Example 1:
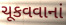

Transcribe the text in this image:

ચૂકવવાનાં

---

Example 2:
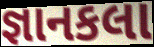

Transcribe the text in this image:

જ્ઞાનકલા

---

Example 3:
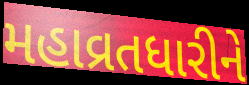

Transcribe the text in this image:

મહાવ્રતધારીને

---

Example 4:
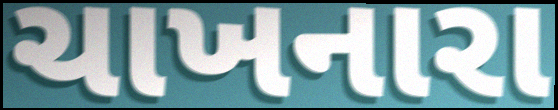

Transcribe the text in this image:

ચાખનારા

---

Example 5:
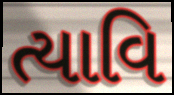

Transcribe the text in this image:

ત્યાવિ